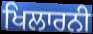
ਖਿਲਾਰਨੀ